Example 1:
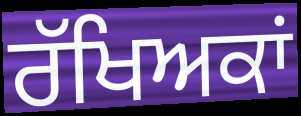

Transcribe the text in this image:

ਰੱਖਿਅਕਾਂ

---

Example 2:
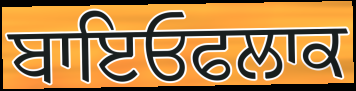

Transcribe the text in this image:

ਬਾਇਓਫਲਾਕ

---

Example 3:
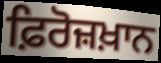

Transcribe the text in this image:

ਫ਼ਿਰੋਜ਼ਖ਼ਾਨ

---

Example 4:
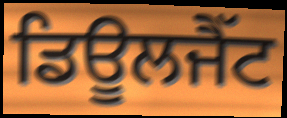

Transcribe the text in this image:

ਡਿਊਲਜੈੱਟ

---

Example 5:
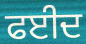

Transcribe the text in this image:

ਫਈਦ